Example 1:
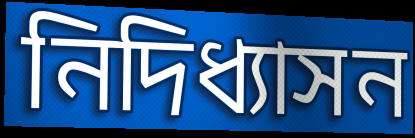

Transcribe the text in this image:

নিদিধ্যাসন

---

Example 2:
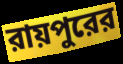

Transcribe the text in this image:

রায়পুরের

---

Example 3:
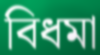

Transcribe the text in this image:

বিধমা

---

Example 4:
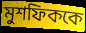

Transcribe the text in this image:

মুশফিককে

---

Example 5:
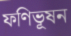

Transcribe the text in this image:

ফণিভূষন